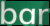
bar